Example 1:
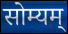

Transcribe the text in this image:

सोम्यम्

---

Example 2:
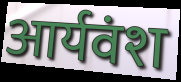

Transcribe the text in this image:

आर्यवंश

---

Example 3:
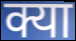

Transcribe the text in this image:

क्या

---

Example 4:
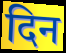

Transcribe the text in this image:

दिन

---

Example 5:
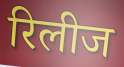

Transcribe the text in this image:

रिलीज